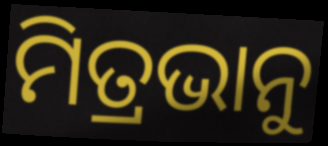
ମିତ୍ରଭାନୁ